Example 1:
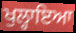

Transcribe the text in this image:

ਖੁਲ੍ਹਾਇਆ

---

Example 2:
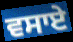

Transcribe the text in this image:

ਵਸਾਏ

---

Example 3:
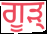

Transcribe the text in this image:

ਗੂੜ੍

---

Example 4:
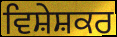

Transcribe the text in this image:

ਵਿਸ਼ੇਸ਼ਕਰ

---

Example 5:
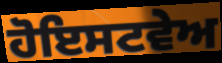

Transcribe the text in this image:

ਹੋਇਸਟਵੇਅ